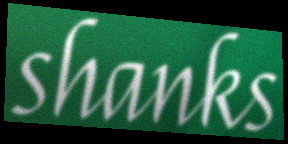
shanks